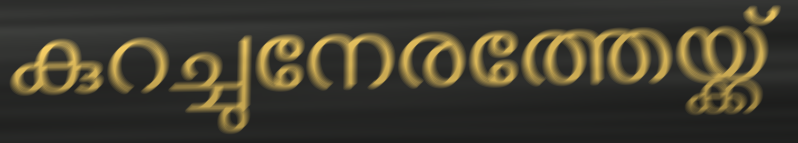
കുറച്ചുനേരത്തേയ്ക്ക്